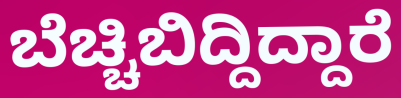
ಬೆಚ್ಚಿಬಿದ್ದಿದ್ದಾರೆ